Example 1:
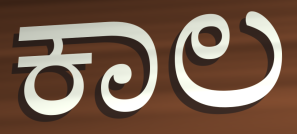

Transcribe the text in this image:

ಕಾಲ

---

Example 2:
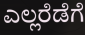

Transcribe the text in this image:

ಎಲ್ಲರೆಡೆಗೆ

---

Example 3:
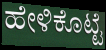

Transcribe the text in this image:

ಹೇಳಿಕೊಟ್ಟೆ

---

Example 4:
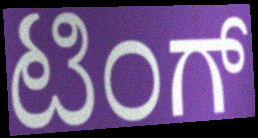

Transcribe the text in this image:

ಟಿಂಗ್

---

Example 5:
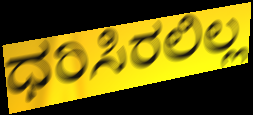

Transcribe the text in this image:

ಧರಿಸಿರಲಿಲ್ಲ